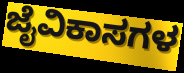
ಜೈವಿಕಾಸಗಳ